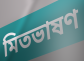
মিতভাষণ